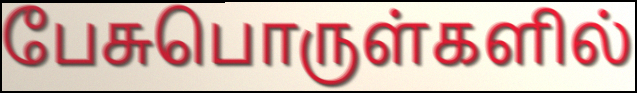
பேசுபொருள்களில்